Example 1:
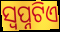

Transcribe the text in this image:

ସ୍ବପ୍ନଟିଏ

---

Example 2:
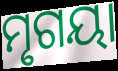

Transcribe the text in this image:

ମୃଗୟା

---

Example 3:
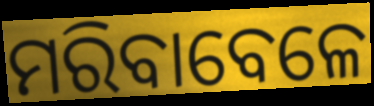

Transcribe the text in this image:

ମରିବାବେଳେ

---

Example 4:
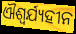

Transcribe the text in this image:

ଐଶ୍ଵର୍ଯ୍ୟହୀନ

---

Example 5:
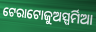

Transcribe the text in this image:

ଟେରାଟୋଜୁଅସ୍ପର୍ମିଆ